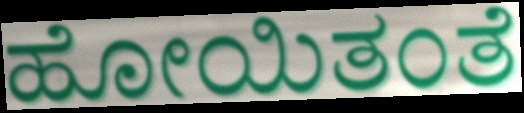
ಹೋಯಿತಂತೆ